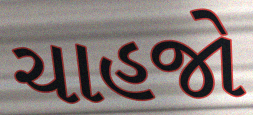
ચાહજો